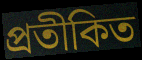
প্ৰতীকিত